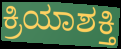
ಕ್ರಿಯಾಶಕ್ತಿ